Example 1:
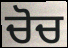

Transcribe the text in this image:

ਚੋਚ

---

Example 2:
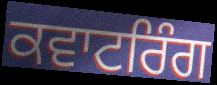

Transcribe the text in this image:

ਕਵਾਟਰਿੰਗ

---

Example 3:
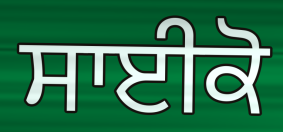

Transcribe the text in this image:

ਸਾਈਕੋ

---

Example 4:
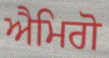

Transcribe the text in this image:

ਐਮਿਗੋ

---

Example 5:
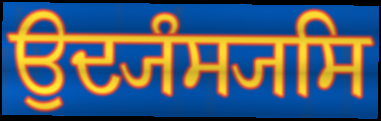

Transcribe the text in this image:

ਉਦ੍ਯੰਸ੍ਯਸਿ